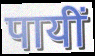
पायीं